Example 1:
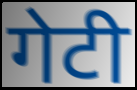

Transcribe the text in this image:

गेटी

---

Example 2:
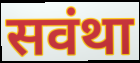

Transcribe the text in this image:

सवंथा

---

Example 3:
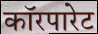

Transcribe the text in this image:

कॉरपारेट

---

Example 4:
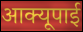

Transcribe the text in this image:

आक्यूपाई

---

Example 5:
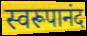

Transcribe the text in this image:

स्वरूपानंद